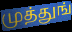
முத்துங்